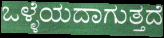
ಒಳ್ಳೆಯದಾಗುತ್ತದೆ